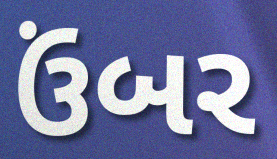
ઉંબર